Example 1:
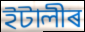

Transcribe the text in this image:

ইটালীৰ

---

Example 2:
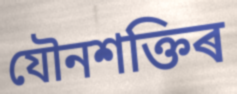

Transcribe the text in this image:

যৌনশক্তিৰ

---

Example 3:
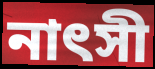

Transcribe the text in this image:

নাৎসী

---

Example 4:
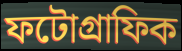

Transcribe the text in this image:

ফটোগ্ৰাফিক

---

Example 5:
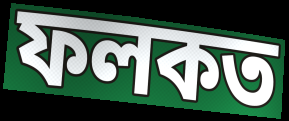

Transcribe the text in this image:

ফলকত